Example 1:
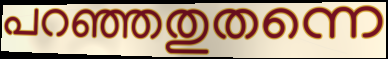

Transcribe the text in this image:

പറഞ്ഞതുതന്നെ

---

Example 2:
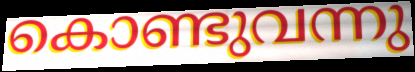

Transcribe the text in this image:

കൊണ്ടുവന്നു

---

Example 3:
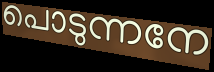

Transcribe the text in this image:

പൊടുന്നനേ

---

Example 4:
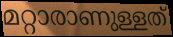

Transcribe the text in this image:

മറ്റാരാണുള്ളത്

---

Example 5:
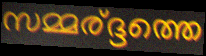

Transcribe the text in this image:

സമ്മര്ദ്ദത്തെ